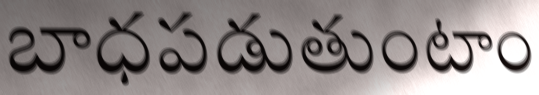
బాధపడుతుంటాం